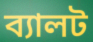
ব্যালট